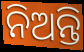
ନିଅନ୍ତି